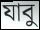
যাবু